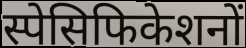
स्पेसिफिकेशनों